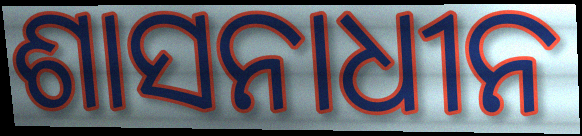
ଶାସନାଧୀନ